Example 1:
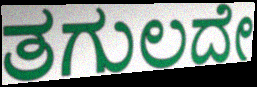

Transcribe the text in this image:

ತಗುಲದೇ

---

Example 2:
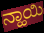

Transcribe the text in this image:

ನ್ಹಾಯಿ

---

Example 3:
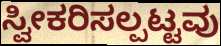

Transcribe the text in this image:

ಸ್ವೀಕರಿಸಲ್ಪಟ್ಟವು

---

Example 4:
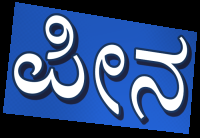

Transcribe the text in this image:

ಪೀನ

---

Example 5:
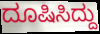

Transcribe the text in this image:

ದೂಷಿಸಿದ್ದು